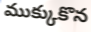
ముక్కుకొన